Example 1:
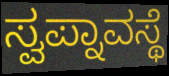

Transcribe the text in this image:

ಸ್ವಪ್ನಾವಸ್ಥೆ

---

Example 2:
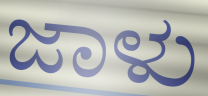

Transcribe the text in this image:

ಜಾಳು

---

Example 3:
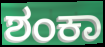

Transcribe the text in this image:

ಶಂಕಾ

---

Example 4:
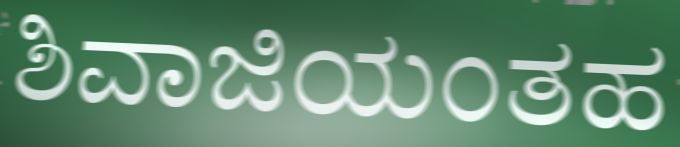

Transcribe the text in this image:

ಶಿವಾಜಿಯಂತಹ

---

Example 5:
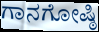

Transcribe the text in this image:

ಗಾನಗೋಷ್ಠಿ